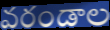
వరండాల